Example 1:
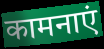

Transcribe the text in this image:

कामनाएं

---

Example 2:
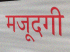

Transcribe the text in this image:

मजूदगी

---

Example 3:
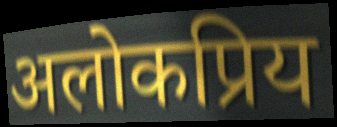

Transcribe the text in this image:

अलोकप्रिय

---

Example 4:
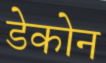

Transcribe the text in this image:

डेकोन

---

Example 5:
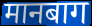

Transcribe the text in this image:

मानबाग